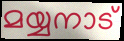
മയ്യനാട്